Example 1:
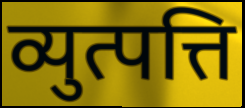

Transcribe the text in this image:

व्युत्पत्ति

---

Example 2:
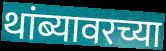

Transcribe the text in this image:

थांब्यावरच्या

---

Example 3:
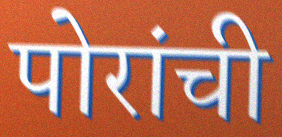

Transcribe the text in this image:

पोरांची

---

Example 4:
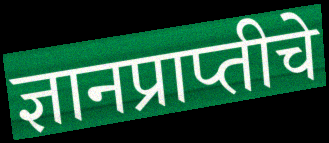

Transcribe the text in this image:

ज्ञानप्राप्तीचे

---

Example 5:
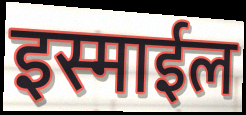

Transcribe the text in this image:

इस्माईल